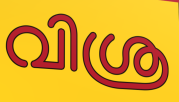
വിശ്ര